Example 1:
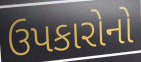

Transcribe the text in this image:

ઉપકારોનો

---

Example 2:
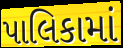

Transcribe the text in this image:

પાલિકામાં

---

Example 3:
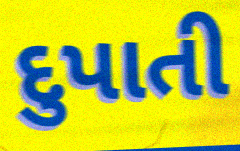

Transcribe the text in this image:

દુપાતી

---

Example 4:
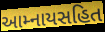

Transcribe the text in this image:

આમ્નાયસહિત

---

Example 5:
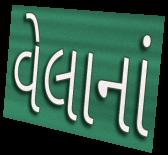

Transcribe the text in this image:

વેલાનાં